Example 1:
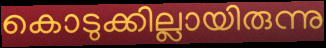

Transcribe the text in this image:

കൊടുക്കില്ലായിരുന്നു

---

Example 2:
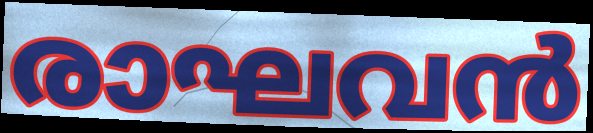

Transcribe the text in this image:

രാഘവൻ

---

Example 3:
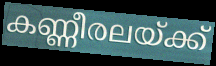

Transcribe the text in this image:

കണ്ണീരലയ്ക്ക്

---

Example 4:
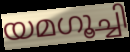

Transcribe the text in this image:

യമഗൂച്ചി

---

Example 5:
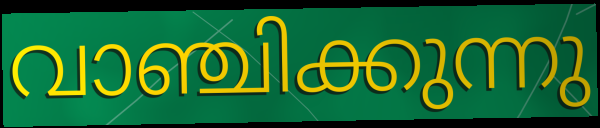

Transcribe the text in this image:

വാഞ്ചിക്കുന്നു